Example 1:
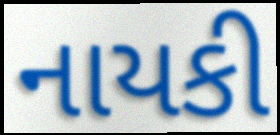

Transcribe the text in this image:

નાયકી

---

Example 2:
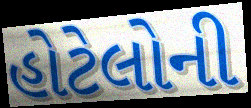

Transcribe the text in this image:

હોટેલોની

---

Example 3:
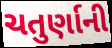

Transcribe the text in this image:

ચતુર્ણાની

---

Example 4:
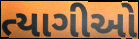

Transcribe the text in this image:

ત્યાગીઓ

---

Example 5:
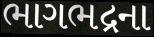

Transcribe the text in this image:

ભાગભદ્રના